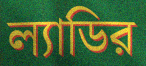
ল্যাডির